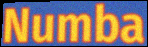
Numba